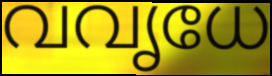
വവൃധേ